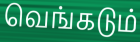
வெங்கடும்